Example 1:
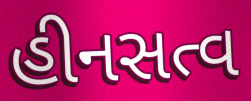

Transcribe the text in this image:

હીનસત્વ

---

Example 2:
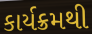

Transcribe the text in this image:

કાર્યક્રમથી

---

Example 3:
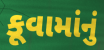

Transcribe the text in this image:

કૂવામાંનું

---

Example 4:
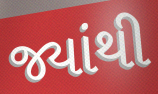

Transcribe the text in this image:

જ્યાંથી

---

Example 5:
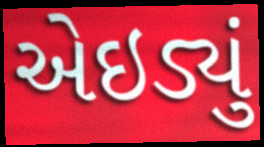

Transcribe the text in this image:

એઇડ્યું